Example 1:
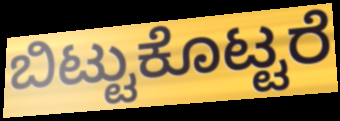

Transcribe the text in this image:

ಬಿಟ್ಟುಕೊಟ್ಟರೆ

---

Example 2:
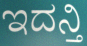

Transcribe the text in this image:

ಇದನ್ತಿ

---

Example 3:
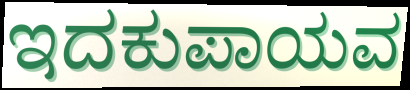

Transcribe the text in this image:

ಇದಕುಪಾಯವ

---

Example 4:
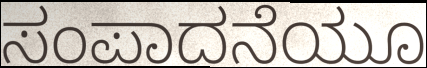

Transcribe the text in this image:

ಸಂಪಾದನೆಯೂ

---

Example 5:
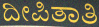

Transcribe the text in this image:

ದೀಪಿತಾತಿ